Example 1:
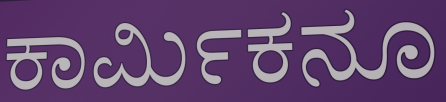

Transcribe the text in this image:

ಕಾರ್ಮಿಕನೂ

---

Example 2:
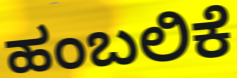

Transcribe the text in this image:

ಹಂಬಲಿಕೆ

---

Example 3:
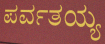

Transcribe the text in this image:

ಪರ್ವತಯ್ಯ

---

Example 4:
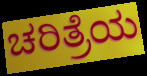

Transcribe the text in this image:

ಚರಿತ್ರೆಯ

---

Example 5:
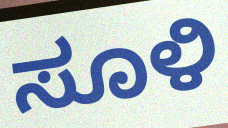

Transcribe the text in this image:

ಸೂಳಿ